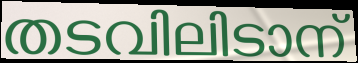
തടവിലിടാന്